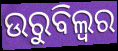
ଉରୁବିଲ୍ଵର